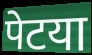
पेटया